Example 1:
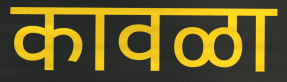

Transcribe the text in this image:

कावळा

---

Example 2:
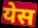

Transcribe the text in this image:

येस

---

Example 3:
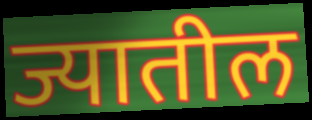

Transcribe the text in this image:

ज्यातील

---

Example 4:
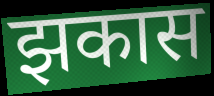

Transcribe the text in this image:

झकास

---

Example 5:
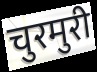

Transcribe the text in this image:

चुरमुरी